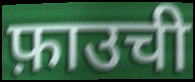
फ़ाउची